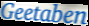
Geetaben